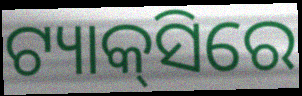
ଟ୍ୟାକ୍‍ସିରେ